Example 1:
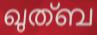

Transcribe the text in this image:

ഖുത്ബ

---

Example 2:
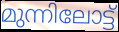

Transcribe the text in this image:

മുന്നിലോട്ട്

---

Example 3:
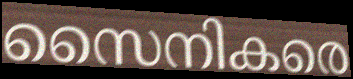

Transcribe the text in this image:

സൈനികരെ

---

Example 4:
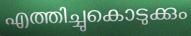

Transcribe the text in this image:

എത്തിച്ചുകൊടുക്കും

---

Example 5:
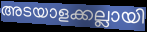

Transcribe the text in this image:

അടയാളക്കല്ലായി